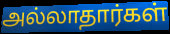
அல்லாதார்கள்